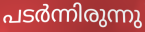
പടർന്നിരുന്നു